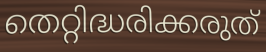
തെറ്റിദ്ധരിക്കരുത്